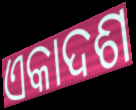
ଏକାଦଶ